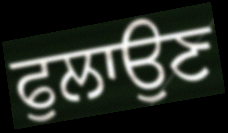
ਫੁਲਾਉਣ